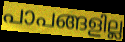
പാപങ്ങളില്ല